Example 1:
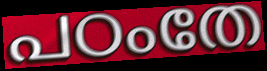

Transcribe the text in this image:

പഠംതേ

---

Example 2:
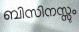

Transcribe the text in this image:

ബിസിനസ്സും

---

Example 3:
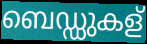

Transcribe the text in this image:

ബെഡ്ഡുകള്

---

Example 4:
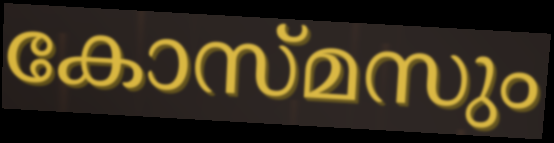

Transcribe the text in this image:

കോസ്മസും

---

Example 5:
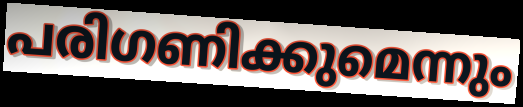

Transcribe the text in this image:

പരിഗണിക്കുമെന്നും